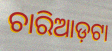
ଚାରିଆଡ଼ଟା